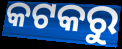
କଟକରୁ